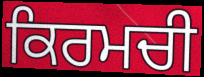
ਕਿਰਮਚੀ